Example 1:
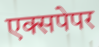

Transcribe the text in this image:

एक्सपेपर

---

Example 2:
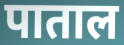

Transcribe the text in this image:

पाताल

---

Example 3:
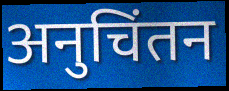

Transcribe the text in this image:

अनुचिंतन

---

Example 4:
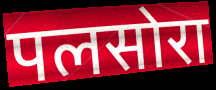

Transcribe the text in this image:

पलसोरा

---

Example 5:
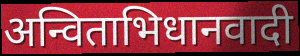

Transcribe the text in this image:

अन्विताभिधानवादी